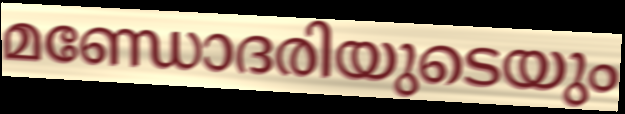
മണ്ഡോദരിയുടെയും